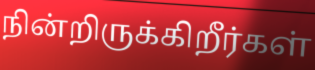
நின்றிருக்கிறீர்கள்